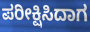
ಪರೀಕ್ಷಿಸಿದಾಗ